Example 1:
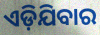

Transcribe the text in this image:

ଏଡ଼ିଯିବାର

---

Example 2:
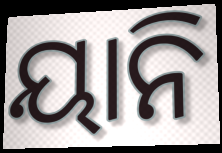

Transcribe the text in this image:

ୟାନି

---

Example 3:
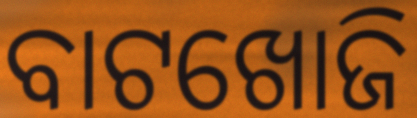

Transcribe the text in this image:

ବାଟଖୋଜି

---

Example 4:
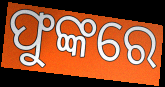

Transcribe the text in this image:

ଫୁଙ୍କରେ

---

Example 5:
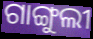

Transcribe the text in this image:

ଗାଙ୍ଗୁଲୀ